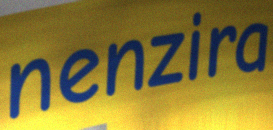
nenzira